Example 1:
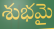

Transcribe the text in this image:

శుభమై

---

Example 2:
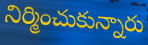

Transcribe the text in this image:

నిర్మించుకున్నారు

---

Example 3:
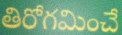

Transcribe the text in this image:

తిరోగమించే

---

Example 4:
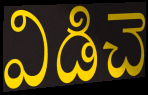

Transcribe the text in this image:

విడిచె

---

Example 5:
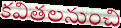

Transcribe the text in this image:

కవితలనుంచి